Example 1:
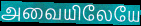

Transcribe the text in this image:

அவையிலேயே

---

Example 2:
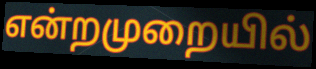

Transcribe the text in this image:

என்றமுறையில்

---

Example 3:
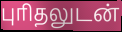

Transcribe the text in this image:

புரிதலுடன்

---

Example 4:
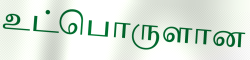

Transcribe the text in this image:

உட்பொருளான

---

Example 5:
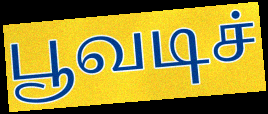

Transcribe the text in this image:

பூவடிச்